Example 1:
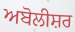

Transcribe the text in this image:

ਅਬੋਲੀਸ਼ਰ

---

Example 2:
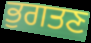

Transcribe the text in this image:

ਭੁਗਤਣ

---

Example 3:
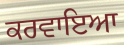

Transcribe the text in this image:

ਕਰਵਾਇਆ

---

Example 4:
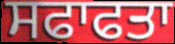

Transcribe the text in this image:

ਸਫਾਫਤਾ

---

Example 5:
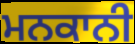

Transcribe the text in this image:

ਮਨਕਾਨੀ